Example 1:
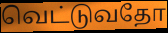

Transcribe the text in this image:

வெட்டுவதோ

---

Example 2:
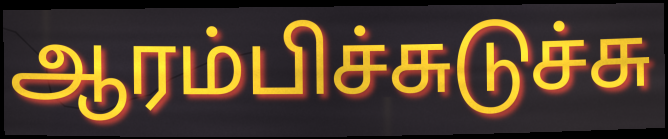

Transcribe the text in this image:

ஆரம்பிச்சுடுச்சு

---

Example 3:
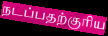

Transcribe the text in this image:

நடப்பதற்குரிய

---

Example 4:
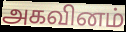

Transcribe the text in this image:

அகவினம்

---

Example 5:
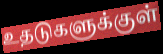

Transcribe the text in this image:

உதடுகளுக்குள்